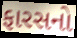
ફારસનો